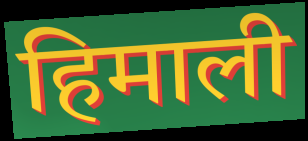
हिमाली